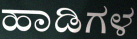
ಹಾಡಿಗಳ